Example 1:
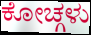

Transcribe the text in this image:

ಕೋಚ್ಗಳು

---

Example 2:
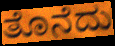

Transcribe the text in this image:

ತೊನೆದು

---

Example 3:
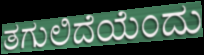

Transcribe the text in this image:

ತಗುಲಿದೆಯೆಂದು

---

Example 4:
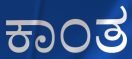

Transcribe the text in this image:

ಕಾಂತ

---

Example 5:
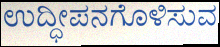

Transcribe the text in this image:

ಉದ್ಧೀಪನಗೊಳಿಸುವ